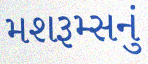
મશરૂમ્સનું